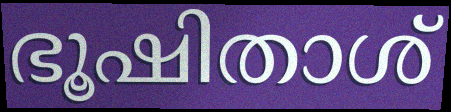
ഭൂഷിതാശ്